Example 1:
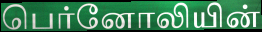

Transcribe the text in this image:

பெர்னோலியின்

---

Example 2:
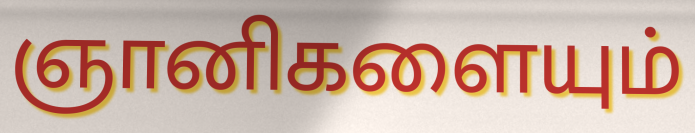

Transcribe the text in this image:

ஞானிகளையும்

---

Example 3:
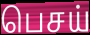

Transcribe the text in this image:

பெசய்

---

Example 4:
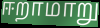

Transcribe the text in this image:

ஈறாமாறு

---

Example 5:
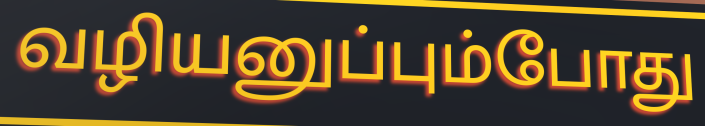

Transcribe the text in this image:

வழியனுப்பும்போது